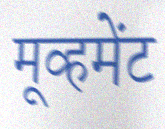
मूव्हमेंट